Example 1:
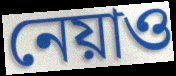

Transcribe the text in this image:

নেয়াও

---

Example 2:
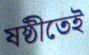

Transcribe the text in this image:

ষষ্ঠীতেই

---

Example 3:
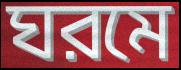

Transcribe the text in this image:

ঘরমে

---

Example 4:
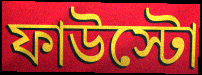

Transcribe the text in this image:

ফাউস্টো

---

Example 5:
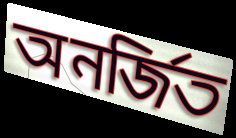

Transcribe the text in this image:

অনর্জিত